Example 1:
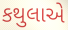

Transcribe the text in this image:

કથુલાએ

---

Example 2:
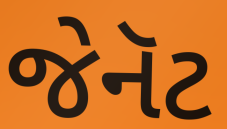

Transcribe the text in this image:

જેનૅટ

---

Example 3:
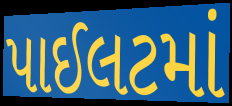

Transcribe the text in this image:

પાઈલટમાં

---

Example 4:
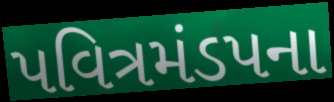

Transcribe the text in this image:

પવિત્રમંડપના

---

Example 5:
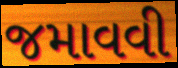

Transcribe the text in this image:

જમાવવી